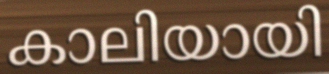
കാലിയായി